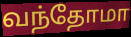
வந்தோமா